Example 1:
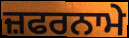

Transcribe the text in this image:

ਜ਼ਫਰਨਾਮੇ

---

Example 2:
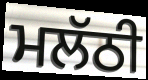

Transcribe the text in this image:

ਮਲੱਠੀ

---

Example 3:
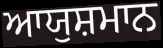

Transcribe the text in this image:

ਆਯੁਸ਼ਮਾਨ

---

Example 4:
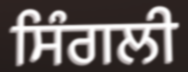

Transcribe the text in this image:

ਸਿੰਗਲੀ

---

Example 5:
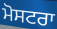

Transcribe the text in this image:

ਮੋਸਟਰਾ